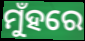
ମୁଁହରେ